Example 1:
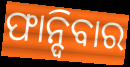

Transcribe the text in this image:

ଫାନ୍ଦିବାର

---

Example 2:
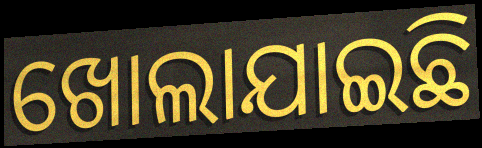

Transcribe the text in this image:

ଖୋଲାଯାଇଛି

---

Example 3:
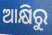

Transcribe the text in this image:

ଆକ୍ଷିରୁ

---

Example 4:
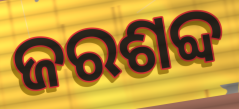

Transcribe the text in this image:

ଜରଶବ୍ଦ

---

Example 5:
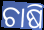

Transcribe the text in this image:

ଚାଷି